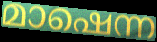
മാഷെന്ന